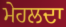
ਮੇਹਲਦਾ